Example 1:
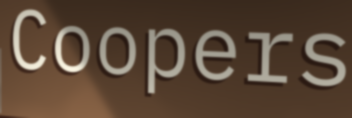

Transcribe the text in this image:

Coopers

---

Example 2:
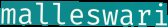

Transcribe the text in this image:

malleswari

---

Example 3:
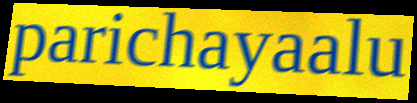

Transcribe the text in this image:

parichayaalu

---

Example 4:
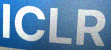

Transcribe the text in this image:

ICLR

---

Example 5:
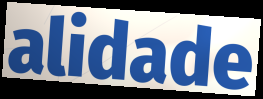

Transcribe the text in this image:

alidade